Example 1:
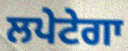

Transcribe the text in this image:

ਲਪੇਟੇਗਾ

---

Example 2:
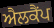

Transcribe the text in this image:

ਐਲਕੈਂਪ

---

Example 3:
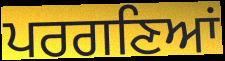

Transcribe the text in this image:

ਪਰਗਣਿਆਂ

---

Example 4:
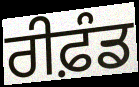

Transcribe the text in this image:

ਰੀਫ਼ੰਡ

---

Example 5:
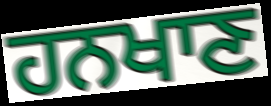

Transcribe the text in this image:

ਹਨਖਾਣ